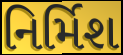
નિર્મિશ